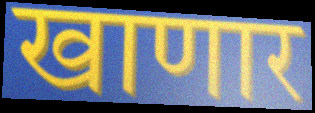
खाणार